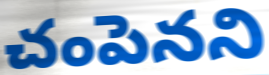
చంపెనని